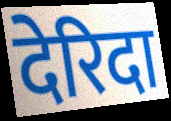
देरिदा